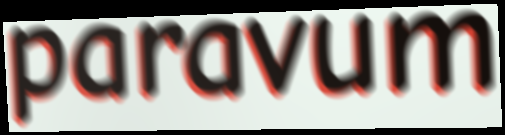
paravum